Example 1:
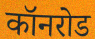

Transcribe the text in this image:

कॉनरोड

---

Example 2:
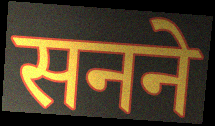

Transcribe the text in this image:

सनने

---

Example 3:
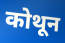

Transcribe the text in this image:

कोथून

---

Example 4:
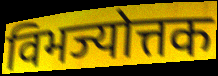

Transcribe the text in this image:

विभज्योत्तक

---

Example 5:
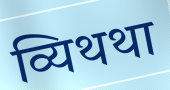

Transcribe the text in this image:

व्यिथथा